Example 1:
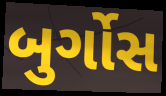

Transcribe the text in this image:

બુર્ગોસ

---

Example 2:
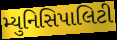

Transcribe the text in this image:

મ્યુનિસિપાલિટી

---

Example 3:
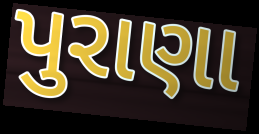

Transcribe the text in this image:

પુરાણા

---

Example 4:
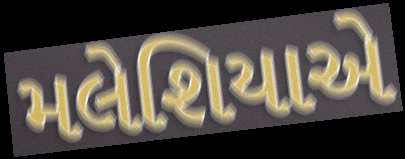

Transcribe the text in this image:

મલેશિયાએ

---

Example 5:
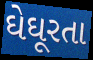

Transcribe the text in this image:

ઘેઘૂરતા